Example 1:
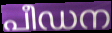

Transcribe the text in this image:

പീഡന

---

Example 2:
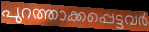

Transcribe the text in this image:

പുറത്താക്കപ്പെട്ടവർ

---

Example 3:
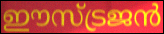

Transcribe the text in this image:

ഈസ്ട്രജൻ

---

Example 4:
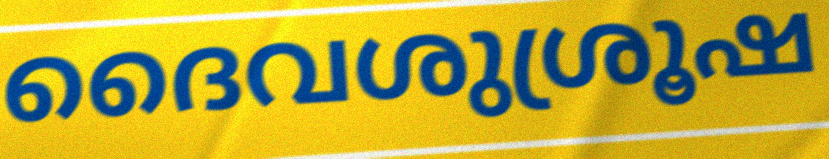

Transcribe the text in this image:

ദൈവശുശ്രൂഷ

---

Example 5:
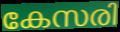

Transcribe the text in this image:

കേസരി